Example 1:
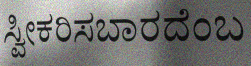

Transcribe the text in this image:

ಸ್ವೀಕರಿಸಬಾರದೆಂಬ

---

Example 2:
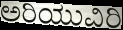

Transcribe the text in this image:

ಅರಿಯುವಿರಿ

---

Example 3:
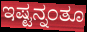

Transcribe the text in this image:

ಇಷ್ಟನ್ನಂತೂ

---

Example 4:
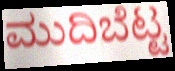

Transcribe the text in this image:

ಮುದಿಬೆಟ್ಟ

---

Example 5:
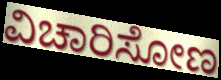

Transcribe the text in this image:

ವಿಚಾರಿಸೋಣ